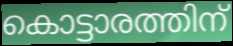
കൊട്ടാരത്തിന്